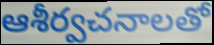
ఆశీర్వచనాలతో